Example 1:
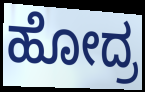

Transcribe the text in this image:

ಹೋದ್ರ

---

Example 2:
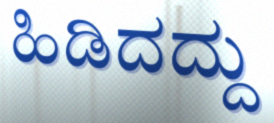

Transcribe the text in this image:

ಹಿಡಿದದ್ದು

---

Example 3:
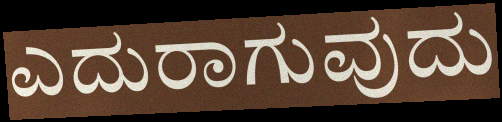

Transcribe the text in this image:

ಎದುರಾಗುವುದು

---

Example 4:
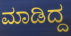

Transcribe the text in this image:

ಮಾಡಿದ್ದ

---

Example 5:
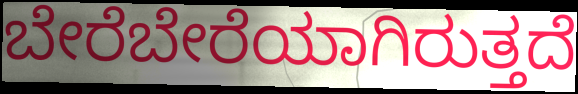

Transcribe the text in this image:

ಬೇರೆಬೇರೆಯಾಗಿರುತ್ತದೆ